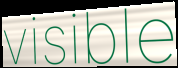
visible